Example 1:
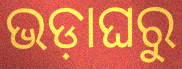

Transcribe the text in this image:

ଭଡ଼ାଘରୁ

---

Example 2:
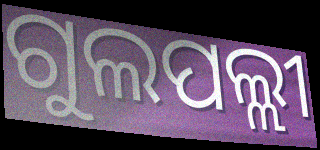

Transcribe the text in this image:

ଗୁଲପଲ୍ଲୀ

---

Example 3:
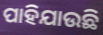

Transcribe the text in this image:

ପାହିଯାଉଛି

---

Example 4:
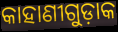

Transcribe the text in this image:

କାହାଣୀଗୁଡ଼ାକ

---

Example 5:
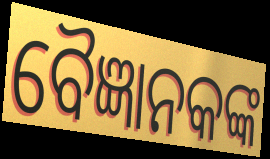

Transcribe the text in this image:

ବୈଜ୍ଞାନକଙ୍କ